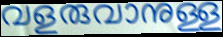
വളരുവാനുള്ള